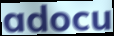
adocu